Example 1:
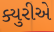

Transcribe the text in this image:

ક્યુરીએ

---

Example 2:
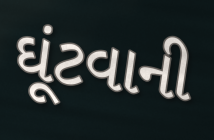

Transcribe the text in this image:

ઘૂંટવાની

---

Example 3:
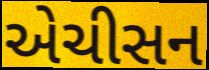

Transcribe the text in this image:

એચીસન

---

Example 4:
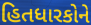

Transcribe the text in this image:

હિતધારકોને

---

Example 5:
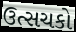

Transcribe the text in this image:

ઉત્સચકો